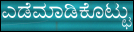
ಎಡೆಮಾಡಿಕೊಟ್ಟು